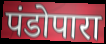
पंडोपारा